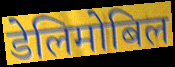
डेलिमोबिल